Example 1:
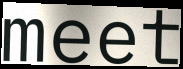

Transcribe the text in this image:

meet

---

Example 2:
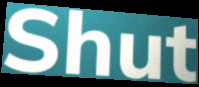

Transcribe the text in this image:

Shut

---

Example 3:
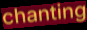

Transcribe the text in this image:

chanting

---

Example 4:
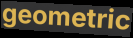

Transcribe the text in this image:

geometric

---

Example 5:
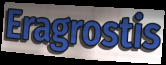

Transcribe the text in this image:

Eragrostis